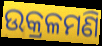
ଉକ୍ରଳମଣି